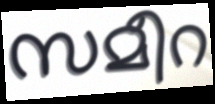
സമീറ